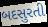
બદસુરતી